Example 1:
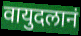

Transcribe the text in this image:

वायुदलानं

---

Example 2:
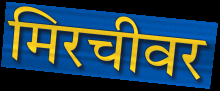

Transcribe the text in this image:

मिरचीवर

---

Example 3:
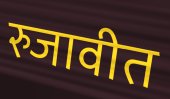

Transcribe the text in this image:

रुजावीत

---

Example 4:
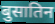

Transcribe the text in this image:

बुसातिन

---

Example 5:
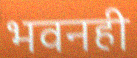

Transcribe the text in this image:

भवनही